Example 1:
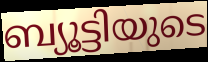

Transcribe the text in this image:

ബ്യൂട്ടിയുടെ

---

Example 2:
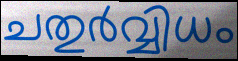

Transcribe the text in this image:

ചതുർവ്വിധം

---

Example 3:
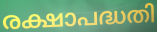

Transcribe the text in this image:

രക്ഷാപദ്ധതി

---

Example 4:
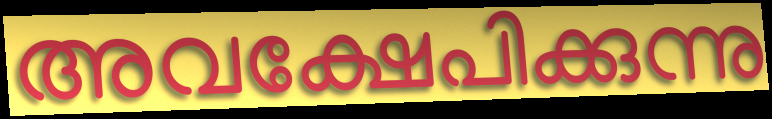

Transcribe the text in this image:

അവക്ഷേപിക്കുന്നു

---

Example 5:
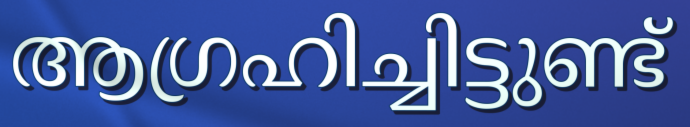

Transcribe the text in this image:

ആഗ്രഹിച്ചിട്ടുണ്ട്